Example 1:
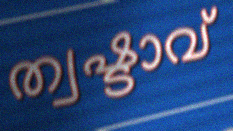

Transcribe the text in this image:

ത്വഷ്ടാവ്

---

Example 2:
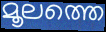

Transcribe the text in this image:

മൂലത്തെ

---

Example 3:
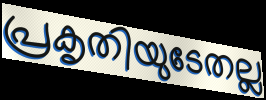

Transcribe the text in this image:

പ്രകൃതിയുടേതല്ല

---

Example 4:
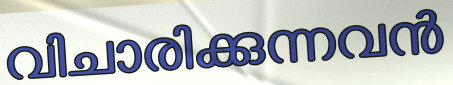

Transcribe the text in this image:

വിചാരിക്കുന്നവൻ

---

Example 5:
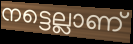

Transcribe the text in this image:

നട്ടെല്ലാണ്